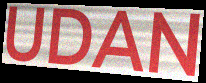
UDAN